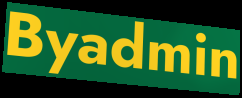
Byadmin